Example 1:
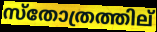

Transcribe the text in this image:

സ്തോത്രത്തില്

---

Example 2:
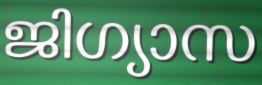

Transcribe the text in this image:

ജിഗ്യാസ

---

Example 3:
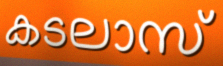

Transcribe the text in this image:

കടലാസ്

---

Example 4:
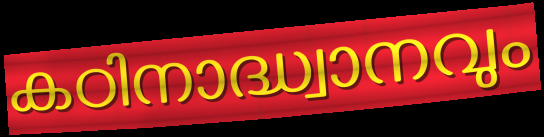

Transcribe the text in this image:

കഠിനാദ്ധ്വാനവും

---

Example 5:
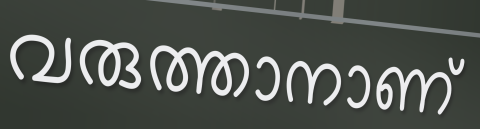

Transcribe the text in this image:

വരുത്താനാണ്